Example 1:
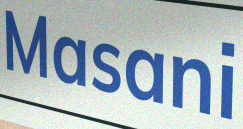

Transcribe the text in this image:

Masani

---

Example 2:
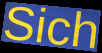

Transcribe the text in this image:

Sich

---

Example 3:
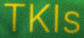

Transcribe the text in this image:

TKIs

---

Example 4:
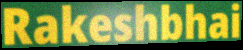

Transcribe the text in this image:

Rakeshbhai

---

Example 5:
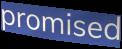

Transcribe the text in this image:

promised